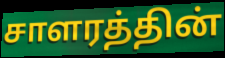
சாளரத்தின்